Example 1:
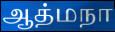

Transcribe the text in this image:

ஆத்மநா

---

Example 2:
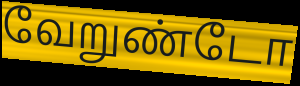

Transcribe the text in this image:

வேறுண்டோ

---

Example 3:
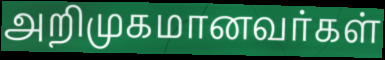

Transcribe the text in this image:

அறிமுகமானவர்கள்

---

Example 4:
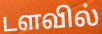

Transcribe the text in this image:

டளவில்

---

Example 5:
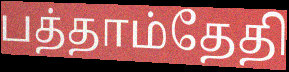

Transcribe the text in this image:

பத்தாம்தேதி